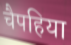
चैपहिया